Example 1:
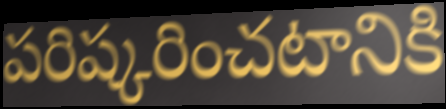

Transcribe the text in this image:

పరిష్కరించటానికి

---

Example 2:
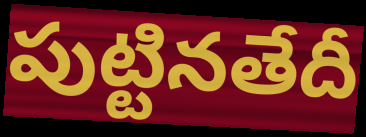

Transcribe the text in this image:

పుట్టినతేదీ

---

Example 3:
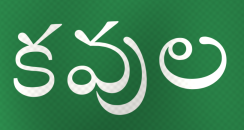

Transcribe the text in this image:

కవుల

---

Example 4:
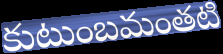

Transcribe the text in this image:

కుటుంబమంతటి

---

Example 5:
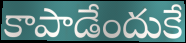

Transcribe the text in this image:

కాపాడేందుకే